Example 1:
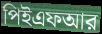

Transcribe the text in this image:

পিইএফআর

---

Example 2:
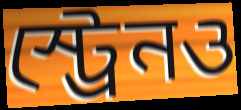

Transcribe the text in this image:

স্ট্রেনও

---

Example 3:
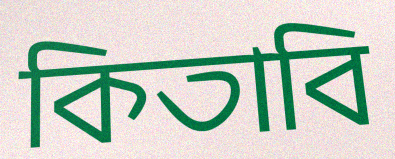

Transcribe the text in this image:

কিতাবি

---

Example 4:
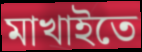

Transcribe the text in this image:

মাখাইতে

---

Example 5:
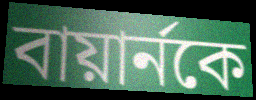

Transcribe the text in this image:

বায়ার্নকে